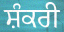
ਸ਼ੰਕਰੀ